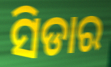
ସିଡାର